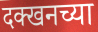
दक्खनच्या